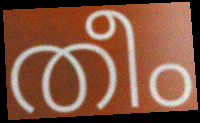
തീം